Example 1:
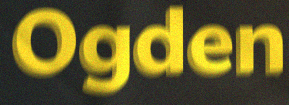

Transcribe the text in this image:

Ogden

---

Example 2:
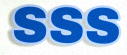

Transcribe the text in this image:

SSS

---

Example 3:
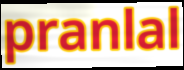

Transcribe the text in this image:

pranlal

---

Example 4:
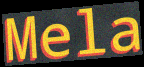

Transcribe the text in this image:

Mela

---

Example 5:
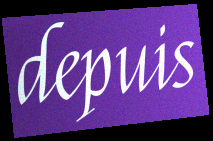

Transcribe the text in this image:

depuis